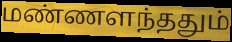
மண்ணளந்ததும்